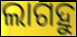
ଲାଗହୁ